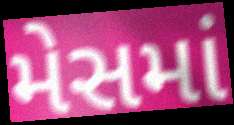
મેસમાં